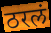
ठरलं